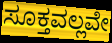
ಸೂಕ್ತವಲ್ಲವೇ